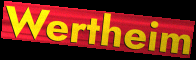
Wertheim